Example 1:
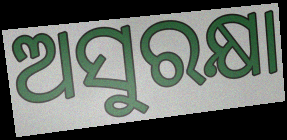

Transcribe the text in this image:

ଅସୁରକ୍ଷା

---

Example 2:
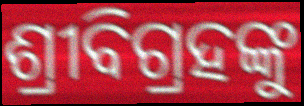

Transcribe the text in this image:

ଶ୍ରୀବିଗ୍ରହଙ୍କୁ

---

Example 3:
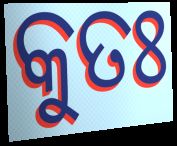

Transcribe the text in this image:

କୁତଃ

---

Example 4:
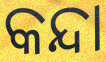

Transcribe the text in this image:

କନ୍ଦା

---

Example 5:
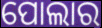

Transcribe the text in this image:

ପୋଲାର